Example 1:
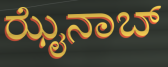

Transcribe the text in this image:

ಝೈನಾಬ್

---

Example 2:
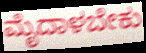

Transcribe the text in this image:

ಮೈದಾಳಬೇಕು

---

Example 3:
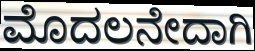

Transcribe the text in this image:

ಮೊದಲನೇದಾಗಿ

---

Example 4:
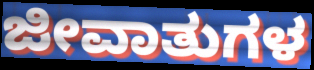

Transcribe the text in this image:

ಜೀವಾತುಗಳ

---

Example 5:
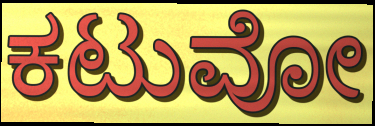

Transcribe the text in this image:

ಕಟುವೋ